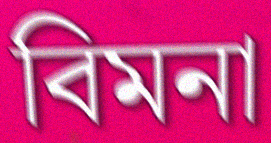
বিমনা